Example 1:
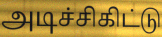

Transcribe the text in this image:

அடிச்சிகிட்டு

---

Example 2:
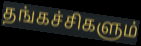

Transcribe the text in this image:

தங்கச்சிகளும்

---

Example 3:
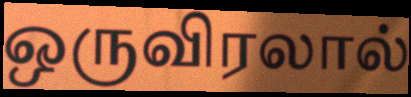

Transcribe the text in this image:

ஒருவிரலால்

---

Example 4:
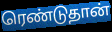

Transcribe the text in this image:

ரெண்டுதான்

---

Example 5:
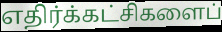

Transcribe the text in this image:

எதிர்க்கட்சிகளைப்